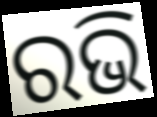
ରଭି